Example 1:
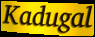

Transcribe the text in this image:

Kadugal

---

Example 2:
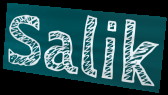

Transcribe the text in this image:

Salik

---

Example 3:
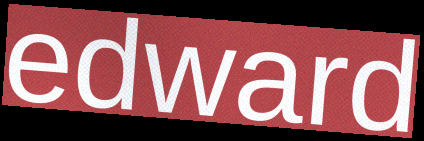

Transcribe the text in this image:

edward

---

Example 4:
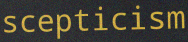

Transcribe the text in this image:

scepticism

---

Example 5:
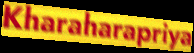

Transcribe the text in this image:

Kharaharapriya